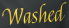
Washed